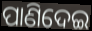
ପାଣିଦେଇ